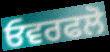
ਓਵਰਫਲੋ